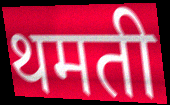
थमती